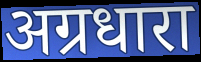
अग्रधारा